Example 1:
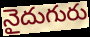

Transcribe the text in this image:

నైదుగురు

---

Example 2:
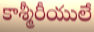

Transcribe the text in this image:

కాశ్మీరీయులే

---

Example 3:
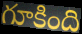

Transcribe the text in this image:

గూకింది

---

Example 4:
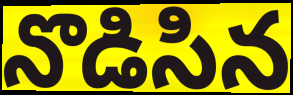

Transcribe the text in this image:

నొడిసిన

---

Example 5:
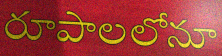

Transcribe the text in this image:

రూపాలలోనూ